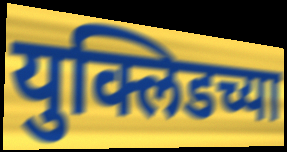
युक्लिडच्या